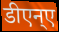
डीएन्ए